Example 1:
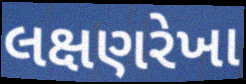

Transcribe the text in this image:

લક્ષણરેખા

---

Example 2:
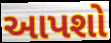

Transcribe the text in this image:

આપશો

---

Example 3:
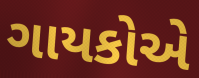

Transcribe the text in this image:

ગાયકોએ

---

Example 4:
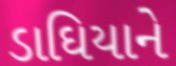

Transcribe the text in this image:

ડાઘિયાને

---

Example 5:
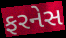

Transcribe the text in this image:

ફરનેસ